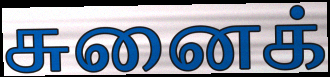
சுனைக்